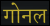
गोनल